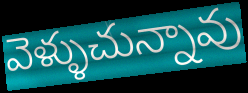
వెళ్ళుచున్నావు